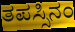
ತಪಸ್ಸಿನಂ